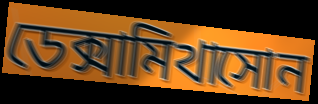
ডেক্সামিথাসোন